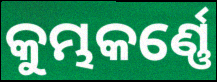
କୁମ୍ଭକର୍ଣ୍ଣେ